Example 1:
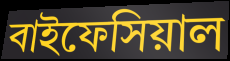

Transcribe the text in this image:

বাইফেসিয়াল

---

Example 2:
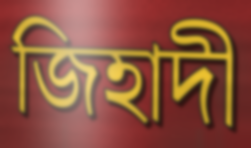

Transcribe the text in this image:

জিহাদী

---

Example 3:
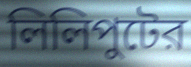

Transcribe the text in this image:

লিলিপুটের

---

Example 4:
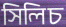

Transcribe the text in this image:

সিলিচ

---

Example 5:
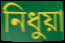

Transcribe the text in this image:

নিধুয়া